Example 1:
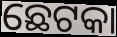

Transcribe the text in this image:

ଛେଟକା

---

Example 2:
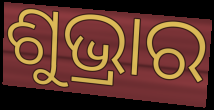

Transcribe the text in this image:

ଶୁଭ୍ରାର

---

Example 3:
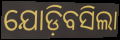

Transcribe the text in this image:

ଯୋଡ଼ିବସିଲା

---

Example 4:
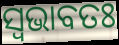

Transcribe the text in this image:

ସ୍ଵଭାବତଃ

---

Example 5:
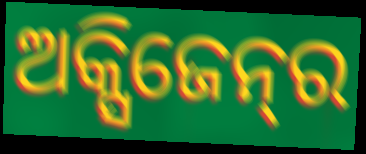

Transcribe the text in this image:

ଅକ୍ସିଜେନ୍‌ର